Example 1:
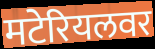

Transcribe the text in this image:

मटेरियलवर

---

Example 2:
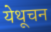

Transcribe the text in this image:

येथूचन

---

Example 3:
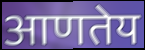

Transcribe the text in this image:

आणतेय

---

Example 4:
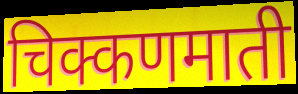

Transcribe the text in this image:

चिक्कणमाती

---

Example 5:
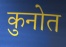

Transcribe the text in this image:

कुनोत